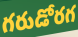
గరుడోరగ